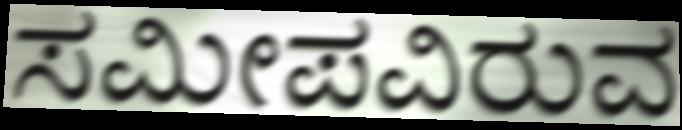
ಸಮೀಪವಿರುವ